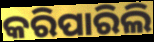
କରିପାରିଲି